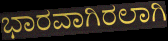
ಭಾರವಾಗಿರಲಾಗಿ